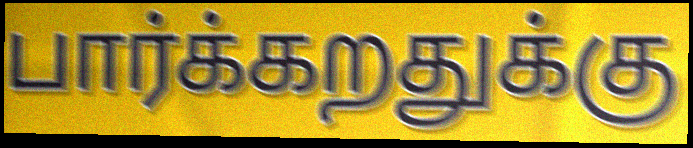
பார்க்கறதுக்கு